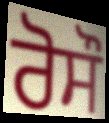
ਰੋਸੌ